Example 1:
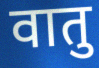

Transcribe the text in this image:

वातु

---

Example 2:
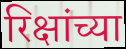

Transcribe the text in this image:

रिक्षांच्या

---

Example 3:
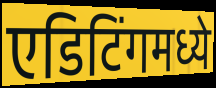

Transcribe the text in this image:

एडिटिंगमध्ये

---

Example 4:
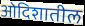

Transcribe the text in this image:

ओदिशातील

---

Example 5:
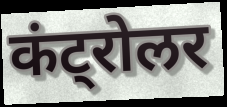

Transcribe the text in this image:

कंट्रोलर